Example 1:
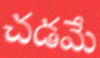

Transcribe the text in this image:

చడమే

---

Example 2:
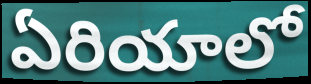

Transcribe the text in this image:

ఏరియాలో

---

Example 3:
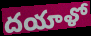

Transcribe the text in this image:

దయాళో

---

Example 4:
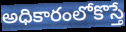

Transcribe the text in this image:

అధికారంలోకొస్తే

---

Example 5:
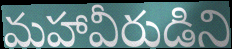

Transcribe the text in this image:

మహావీరుడిని